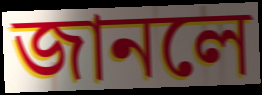
জানলে